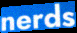
nerds